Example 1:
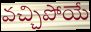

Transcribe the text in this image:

వచ్చిపోయే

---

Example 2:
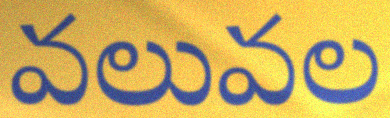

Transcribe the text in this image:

వలువల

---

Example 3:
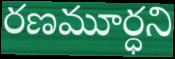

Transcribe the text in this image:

రణమూర్ధని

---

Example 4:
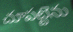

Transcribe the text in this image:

చూపట్టెను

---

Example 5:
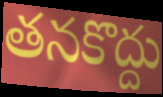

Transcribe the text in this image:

తనకొద్దు